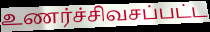
உணர்ச்சிவசப்பட்ட